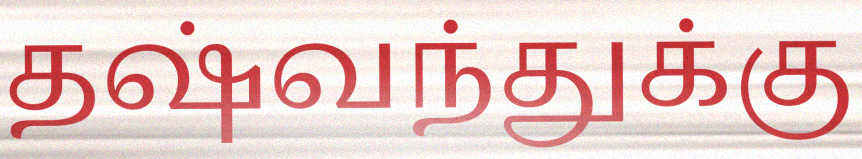
தஷ்வந்துக்கு